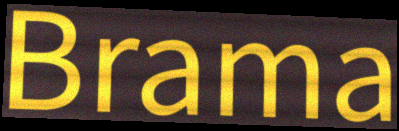
Brama